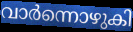
വാർന്നൊഴുകി